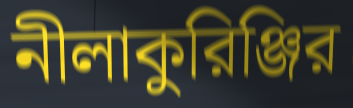
নীলাকুরিঞ্জির